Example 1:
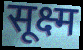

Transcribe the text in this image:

सूक्ष्म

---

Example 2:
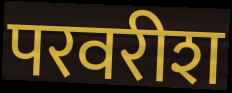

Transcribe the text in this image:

परवरीश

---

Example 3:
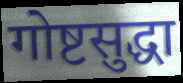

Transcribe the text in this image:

गोष्टसुद्धा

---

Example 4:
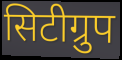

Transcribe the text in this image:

सिटीग्रुप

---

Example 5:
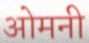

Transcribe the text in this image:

ओमनी